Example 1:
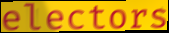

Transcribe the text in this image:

electors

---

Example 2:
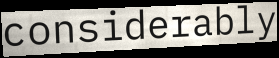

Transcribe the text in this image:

considerably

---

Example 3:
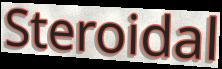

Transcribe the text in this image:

Steroidal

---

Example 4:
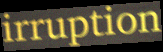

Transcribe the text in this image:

irruption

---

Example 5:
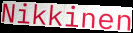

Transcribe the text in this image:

Nikkinen